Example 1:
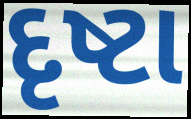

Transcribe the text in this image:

દૃષ્ટા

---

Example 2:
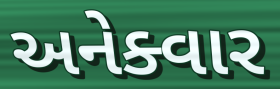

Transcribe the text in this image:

અનેક્વાર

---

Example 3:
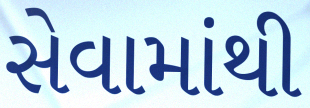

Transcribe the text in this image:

સેવામાંથી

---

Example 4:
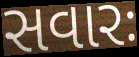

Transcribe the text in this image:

સવારઃ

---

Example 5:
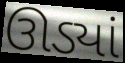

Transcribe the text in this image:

ઊડ્યાં